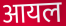
आयल